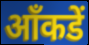
आँकडें